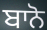
ਬਾਨੋ